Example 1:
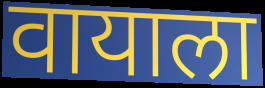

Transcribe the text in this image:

वायाला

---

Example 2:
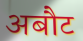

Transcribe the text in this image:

अबौट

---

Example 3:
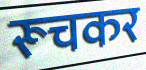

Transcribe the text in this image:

रूचकर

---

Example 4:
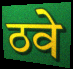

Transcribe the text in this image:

ठवे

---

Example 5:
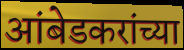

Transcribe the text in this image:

आंबेडकरांच्या